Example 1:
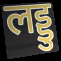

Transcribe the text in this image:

लड्डु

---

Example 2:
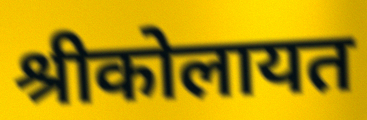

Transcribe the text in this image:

श्रीकोलायत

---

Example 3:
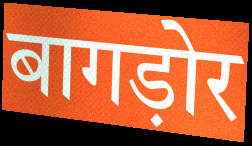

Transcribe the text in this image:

बागड़ोर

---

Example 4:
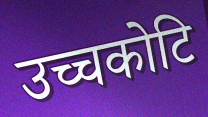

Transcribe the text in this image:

उच्चकोटि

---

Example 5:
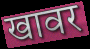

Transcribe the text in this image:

खावर